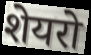
शेयरो